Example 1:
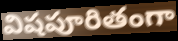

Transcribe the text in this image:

విషపూరితంగా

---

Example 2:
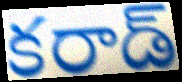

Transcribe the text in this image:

కరాడ్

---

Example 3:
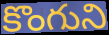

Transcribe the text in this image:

కొంగుని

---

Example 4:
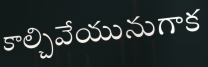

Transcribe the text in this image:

కాల్చివేయునుగాక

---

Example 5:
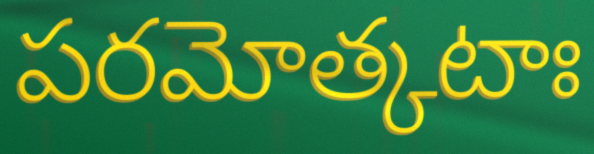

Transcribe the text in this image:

పరమోత్కటాః